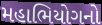
મહાભિયોગનો